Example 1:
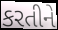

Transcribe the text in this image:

કરતીને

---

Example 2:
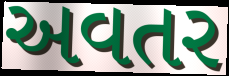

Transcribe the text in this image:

અવતર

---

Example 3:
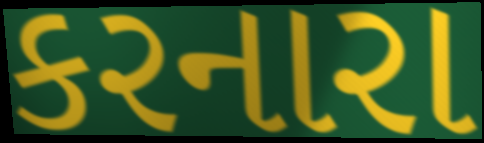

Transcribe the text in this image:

કરનારા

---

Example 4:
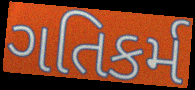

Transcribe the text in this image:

ગતિકર્મ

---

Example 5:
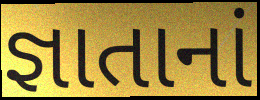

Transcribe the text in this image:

જ્ઞાતાનાં